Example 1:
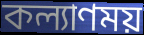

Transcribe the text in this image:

কল্যাণময়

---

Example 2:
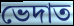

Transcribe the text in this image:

ভেদাত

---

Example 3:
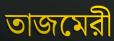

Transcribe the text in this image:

তাজমেরী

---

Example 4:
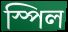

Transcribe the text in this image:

স্পিল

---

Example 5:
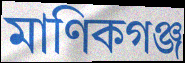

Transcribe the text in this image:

মাণিকগঞ্জ